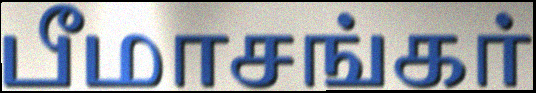
பீமாசங்கர்